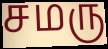
சமரு